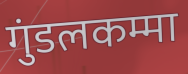
गुंडलकम्मा